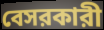
বেসরকারী